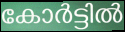
കോർട്ടിൽ